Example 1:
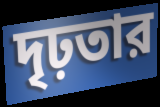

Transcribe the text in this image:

দৃঢ়তার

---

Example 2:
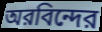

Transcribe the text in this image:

অরবিন্দের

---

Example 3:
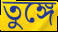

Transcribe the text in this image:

তুঙ্গে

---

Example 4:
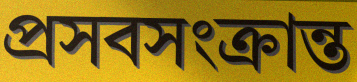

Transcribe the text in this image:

প্রসবসংক্রান্ত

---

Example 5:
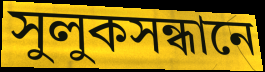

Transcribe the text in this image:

সুলুকসন্ধানে